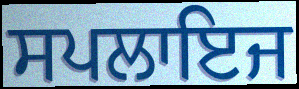
ਸਪਲਾਇਜ